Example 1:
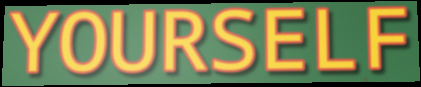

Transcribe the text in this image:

YOURSELF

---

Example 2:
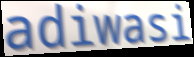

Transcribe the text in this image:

adiwasi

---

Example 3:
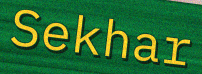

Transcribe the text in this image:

Sekhar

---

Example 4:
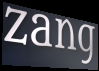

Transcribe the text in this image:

zang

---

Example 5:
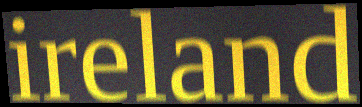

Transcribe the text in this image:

ireland